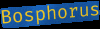
Bosphorus